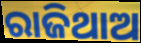
ରାଜିଥାଅ